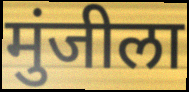
मुंजीला